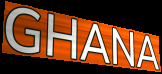
GHANA